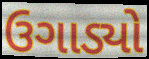
ઉગાડ્યો